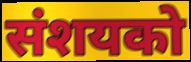
संशयको